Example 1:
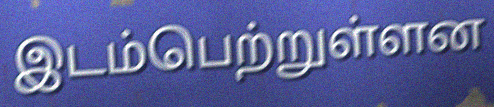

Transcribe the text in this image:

இடம்பெற்றுள்ளன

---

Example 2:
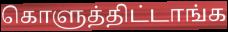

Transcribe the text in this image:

கொளுத்திட்டாங்க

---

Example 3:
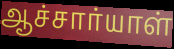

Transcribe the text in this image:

ஆச்சார்யாள்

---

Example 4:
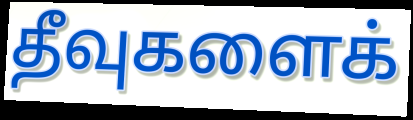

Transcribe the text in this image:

தீவுகளைக்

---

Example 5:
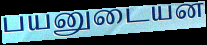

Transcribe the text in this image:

பயனுடையன